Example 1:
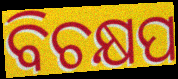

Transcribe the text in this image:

ବିଚକ୍ଷପ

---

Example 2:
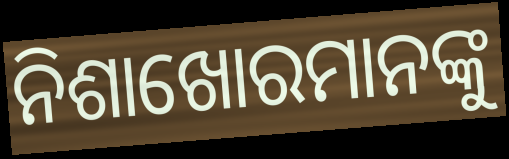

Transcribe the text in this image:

ନିଶାଖୋରମାନଙ୍କୁ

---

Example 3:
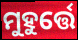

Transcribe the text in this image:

ମୁହୁର୍ତ୍ତେ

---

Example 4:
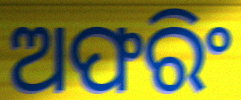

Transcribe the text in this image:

ଅଫରିଂ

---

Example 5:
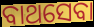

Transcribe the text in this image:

ବାଥସେବା